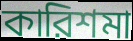
কারিশমা